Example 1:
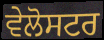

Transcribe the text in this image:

ਵੇਲੋਸਟਰ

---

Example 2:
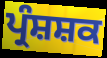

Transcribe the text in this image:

ਪ੍ਰੰਸ਼ਸ਼ਕ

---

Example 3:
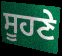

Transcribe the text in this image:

ਸੂਹਣੇ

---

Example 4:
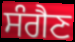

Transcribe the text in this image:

ਸੰਗੈਣ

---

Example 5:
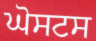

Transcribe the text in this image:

ਘੋਸਟਸ